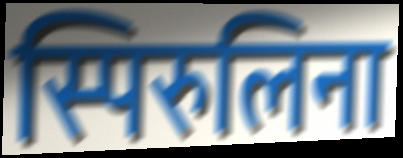
स्पिरुलिना